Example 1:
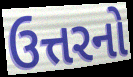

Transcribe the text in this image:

ઉત્તરનો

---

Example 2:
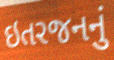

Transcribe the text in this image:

ઇતરજનનું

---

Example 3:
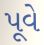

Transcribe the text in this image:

પૂવે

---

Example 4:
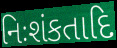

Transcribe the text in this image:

નિઃશંકતાદિ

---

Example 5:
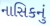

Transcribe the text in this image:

નાસિકનું